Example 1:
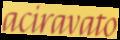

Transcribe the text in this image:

aciravato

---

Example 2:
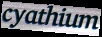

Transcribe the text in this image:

cyathium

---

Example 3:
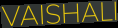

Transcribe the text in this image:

VAISHALI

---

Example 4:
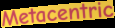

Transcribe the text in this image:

Metacentric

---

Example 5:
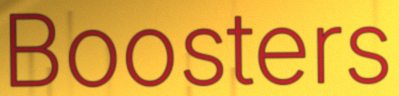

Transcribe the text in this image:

Boosters